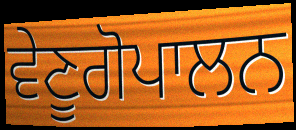
ਵੇਣੂਗੋਪਾਲਨ